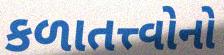
કળાતત્ત્વોનો